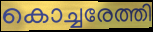
കൊച്ചരേത്തി